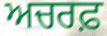
ਅਚਰਫ਼